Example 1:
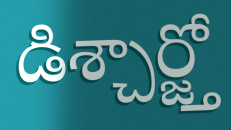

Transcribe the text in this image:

డిశ్చార్జ్తో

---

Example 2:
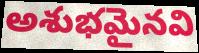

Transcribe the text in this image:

అశుభమైనవి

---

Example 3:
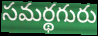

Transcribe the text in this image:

సమర్థగురు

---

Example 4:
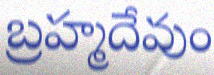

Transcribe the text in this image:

బ్రహ్మదేవుం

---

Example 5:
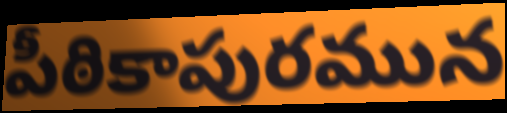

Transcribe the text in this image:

పీఠికాపురమున